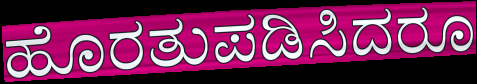
ಹೊರತುಪಡಿಸಿದರೂ